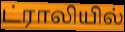
ட்ராலியில்